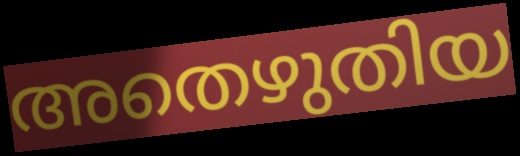
അതെഴുതിയ